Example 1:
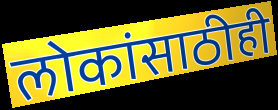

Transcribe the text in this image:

लोकांसाठीही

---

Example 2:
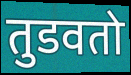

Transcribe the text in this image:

तुडवतो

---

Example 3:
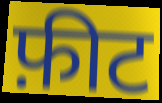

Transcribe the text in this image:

फ़ीट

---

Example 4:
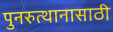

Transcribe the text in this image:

पुनरुत्थानासाठी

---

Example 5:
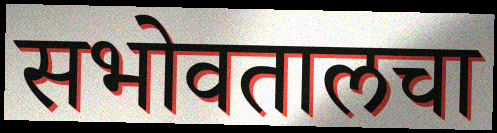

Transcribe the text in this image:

सभोवतालचा